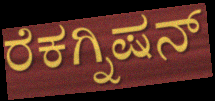
ರೆಕಗ್ನಿಷನ್